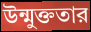
উন্মুক্ততার